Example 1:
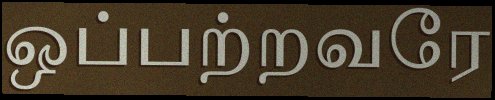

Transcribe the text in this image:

ஒப்பற்றவரே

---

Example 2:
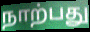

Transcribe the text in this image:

நாற்பது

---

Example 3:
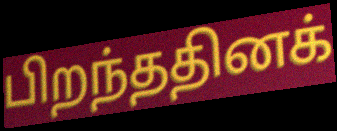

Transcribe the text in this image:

பிறந்ததினக்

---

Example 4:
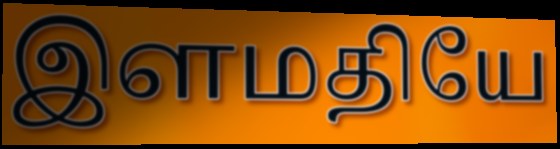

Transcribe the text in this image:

இளமதியே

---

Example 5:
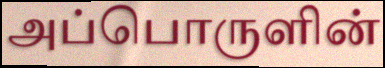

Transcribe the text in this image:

அப்பொருளின்